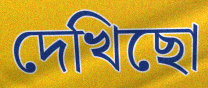
দেখিছো